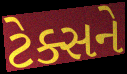
ટેક્સને